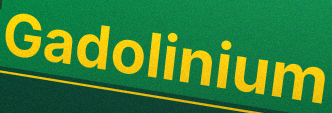
Gadolinium